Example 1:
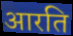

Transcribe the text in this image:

आरति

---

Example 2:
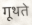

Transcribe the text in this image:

गूथते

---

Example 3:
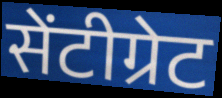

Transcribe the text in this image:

सेंटीग्रेट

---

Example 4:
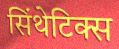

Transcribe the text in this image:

सिंथेटिक्स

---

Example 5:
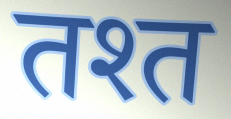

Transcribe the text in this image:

तश्त